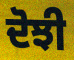
ਦੋਝੀ